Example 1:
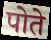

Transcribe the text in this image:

पोते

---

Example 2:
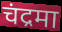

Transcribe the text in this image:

चंद्रमा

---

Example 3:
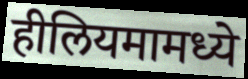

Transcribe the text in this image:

हीलियमामध्ये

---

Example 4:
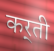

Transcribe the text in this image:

कर्ती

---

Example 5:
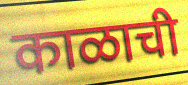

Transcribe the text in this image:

काळाची